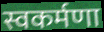
स्वकर्मणा